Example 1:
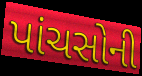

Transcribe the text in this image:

પાંચસોની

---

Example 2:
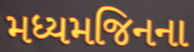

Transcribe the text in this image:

મધ્યમજિનના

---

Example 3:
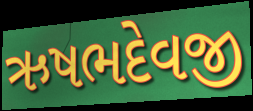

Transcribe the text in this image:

ઋષભદેવજી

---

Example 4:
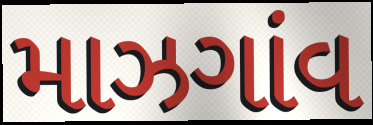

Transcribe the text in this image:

માઝગાંવ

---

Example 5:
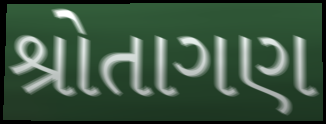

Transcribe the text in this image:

શ્રોતાગણ